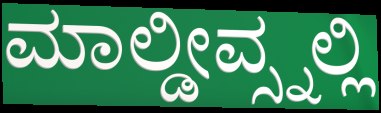
ಮಾಲ್ಡೀವ್ಸ್ನಲ್ಲಿ